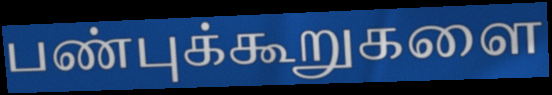
பண்புக்கூறுகளை